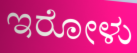
ಇರೋಳು